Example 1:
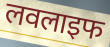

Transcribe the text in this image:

लवलाइफ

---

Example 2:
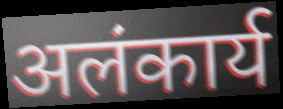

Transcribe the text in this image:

अलंकार्य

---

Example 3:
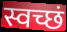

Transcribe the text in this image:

स्वच्छं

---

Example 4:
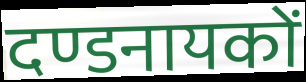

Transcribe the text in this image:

दण्डनायकों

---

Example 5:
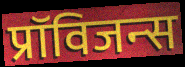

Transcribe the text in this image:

प्रॉविजन्स